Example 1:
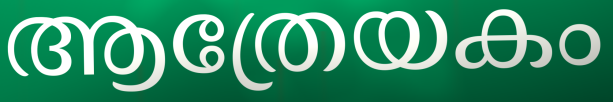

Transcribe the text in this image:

ആത്രേയകം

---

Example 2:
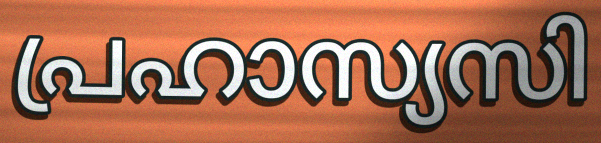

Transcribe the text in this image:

പ്രഹാസ്യസി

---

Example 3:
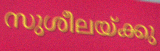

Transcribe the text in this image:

സുശീലയ്ക്കു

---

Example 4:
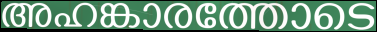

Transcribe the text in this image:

അഹങ്കാരത്തോടെ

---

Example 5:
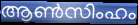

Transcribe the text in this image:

ആൺസിംഹം